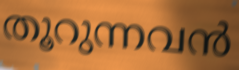
തൂറുന്നവൻ